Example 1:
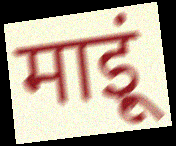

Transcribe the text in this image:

माइूं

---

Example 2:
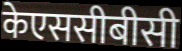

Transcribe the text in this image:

केएससीबीसी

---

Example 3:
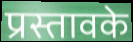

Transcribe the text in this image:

प्रस्तावके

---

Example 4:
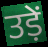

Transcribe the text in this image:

उड़ें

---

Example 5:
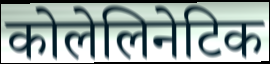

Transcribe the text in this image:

कोलेलिनेटिक